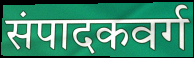
संपादकवर्ग